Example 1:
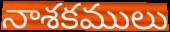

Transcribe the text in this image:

నాశకములు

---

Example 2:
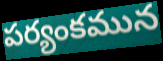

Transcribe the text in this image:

పర్యంకమున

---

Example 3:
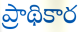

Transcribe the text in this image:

ప్రాథికార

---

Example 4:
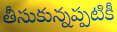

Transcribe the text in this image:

తీసుకున్నప్పటికీ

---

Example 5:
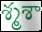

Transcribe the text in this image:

శ్మశా